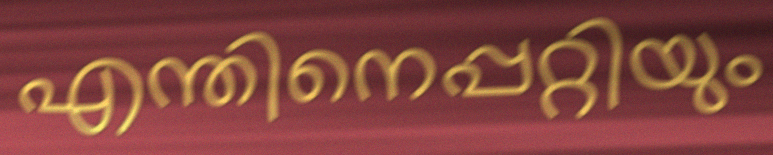
എന്തിനെപ്പറ്റിയും